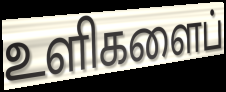
உளிகளைப்